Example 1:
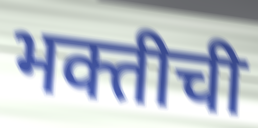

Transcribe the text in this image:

भक्‍तीची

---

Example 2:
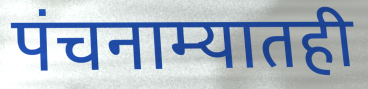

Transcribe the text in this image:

पंचनाम्यातही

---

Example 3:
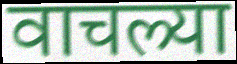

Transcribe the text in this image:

वाचल्या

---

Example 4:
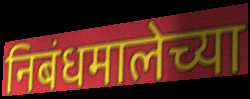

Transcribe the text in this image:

निबंधमालेच्या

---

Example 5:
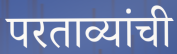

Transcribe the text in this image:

परताव्यांची